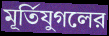
মূর্তিযুগলের